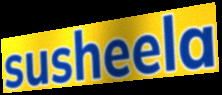
susheela